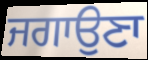
ਜਗਾਉਣਾ